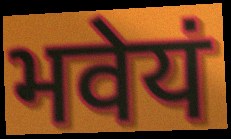
भवेयं